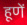
हूणें